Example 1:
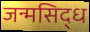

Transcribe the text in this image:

जन्मसिद्ध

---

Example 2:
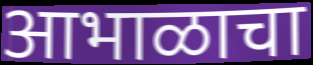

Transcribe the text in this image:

आभाळाचा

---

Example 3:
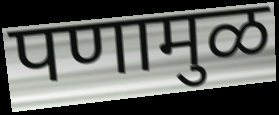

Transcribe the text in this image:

पणामुळ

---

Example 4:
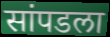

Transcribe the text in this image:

सांपडला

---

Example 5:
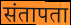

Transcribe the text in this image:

संतापता